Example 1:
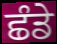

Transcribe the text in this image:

ਛੰਡੇ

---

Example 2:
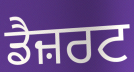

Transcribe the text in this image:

ਡੈਜ਼ਰਟ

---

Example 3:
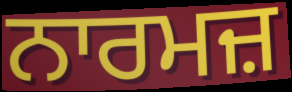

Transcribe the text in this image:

ਨਾਰਮਜ਼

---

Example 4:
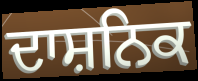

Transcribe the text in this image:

ਦਾਸ਼ਨਿਕ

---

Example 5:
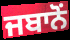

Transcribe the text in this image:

ਜਬਾਨੋਂ